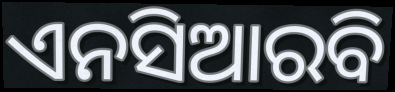
ଏନସିଆରବି